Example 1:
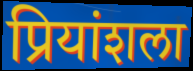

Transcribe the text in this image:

प्रियांशला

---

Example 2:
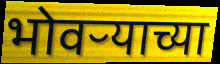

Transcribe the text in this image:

भोवऱ्याच्या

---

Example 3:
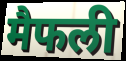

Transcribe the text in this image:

मैफली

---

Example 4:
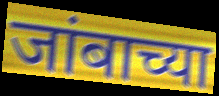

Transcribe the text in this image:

जांबाच्या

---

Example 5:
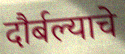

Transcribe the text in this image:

दौर्बल्याचे